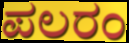
ಪಲರಂ